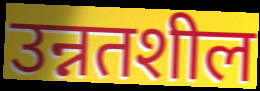
उन्नतशील